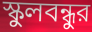
স্কুলবন্ধুর